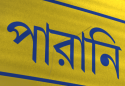
পারানি